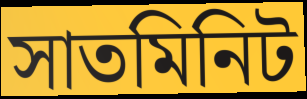
সাতমিনিট